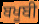
ਬਖੂਬੀ